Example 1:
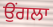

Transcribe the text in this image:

ਉਂਗਲਾ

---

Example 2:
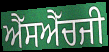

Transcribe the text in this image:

ਐੱਸਐੱਚਜੀ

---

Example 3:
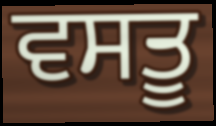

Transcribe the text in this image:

ਵਸਤੂ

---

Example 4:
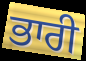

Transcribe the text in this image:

ਭਾਰੀ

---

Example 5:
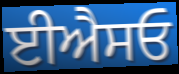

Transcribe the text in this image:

ਈਐਸਓ